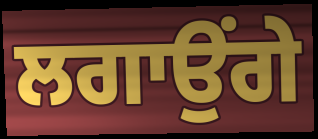
ਲਗਾਉਂਗੇ